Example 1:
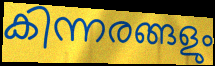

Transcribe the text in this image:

കിന്നരങ്ങളും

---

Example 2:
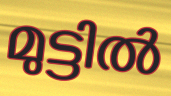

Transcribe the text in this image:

മുട്ടിൽ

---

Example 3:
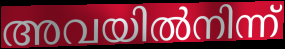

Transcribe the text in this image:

അവയിൽനിന്ന്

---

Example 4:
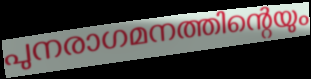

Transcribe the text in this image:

പുനരാഗമനത്തിന്റെയും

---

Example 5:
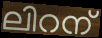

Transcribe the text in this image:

ലിറന്